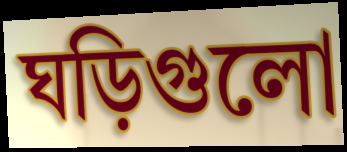
ঘড়িগুলো